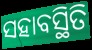
ସହାବସ୍ଥିତି